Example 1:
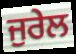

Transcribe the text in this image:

ਜੁਰੇਲ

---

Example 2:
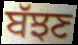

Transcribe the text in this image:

ਬੱਝਣ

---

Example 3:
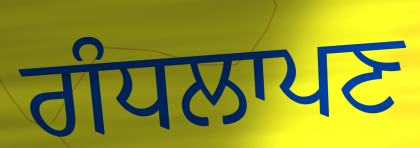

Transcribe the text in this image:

ਗੰਧਲਾਪਣ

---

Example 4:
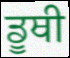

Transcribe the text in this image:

ਡੂਥੀ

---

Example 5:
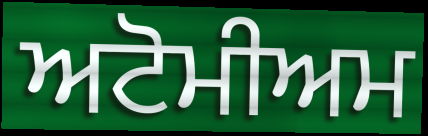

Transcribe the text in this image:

ਅਟੋਮੀਅਮ